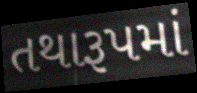
તથારૂપમાં